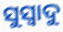
ସୁସ୍ୱାଦୁ